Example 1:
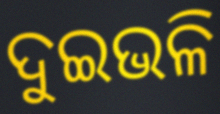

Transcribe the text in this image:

ଦୁଇଭଳି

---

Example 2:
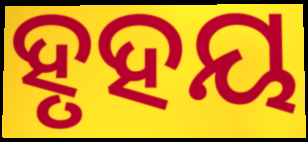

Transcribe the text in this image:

ହୃହୟ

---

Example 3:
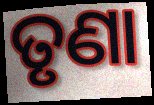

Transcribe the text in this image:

ତୃଣା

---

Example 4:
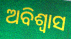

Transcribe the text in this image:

ଅବିଶ୍ବାସ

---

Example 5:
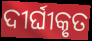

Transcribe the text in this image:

ଦୀର୍ଘୀକୃତ